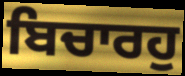
ਬਿਚਾਰਹੁ